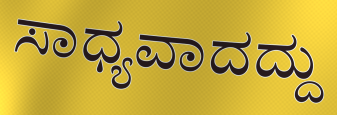
ಸಾಧ್ಯವಾದದ್ದು